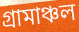
গ্ৰামাঞ্চল